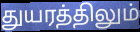
துயரத்திலும்